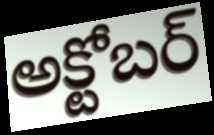
అక్టోబర్